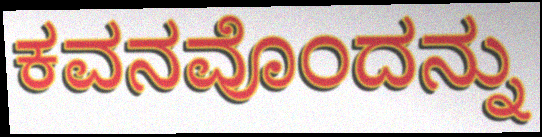
ಕವನವೊಂದನ್ನು